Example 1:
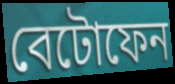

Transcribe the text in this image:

বেটোফেন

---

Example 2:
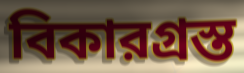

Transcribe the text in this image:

বিকারগ্রস্ত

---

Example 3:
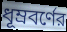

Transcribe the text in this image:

ধূম্রবর্ণের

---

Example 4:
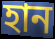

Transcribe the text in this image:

হান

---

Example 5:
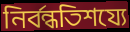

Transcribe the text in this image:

নির্বন্ধতিশয্যে